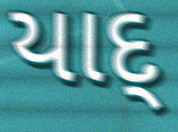
યાદ્